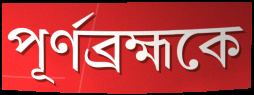
পূর্ণব্রহ্মকে